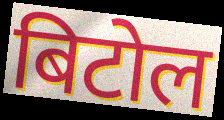
बिटोल